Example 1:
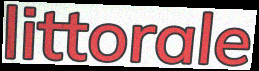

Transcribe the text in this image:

littorale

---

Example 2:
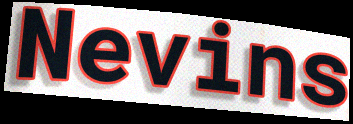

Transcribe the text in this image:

Nevins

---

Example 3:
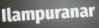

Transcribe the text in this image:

Ilampuranar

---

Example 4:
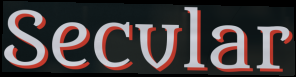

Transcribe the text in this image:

Secular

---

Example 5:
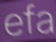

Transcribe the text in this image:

efa